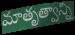
మాతృత్వాన్ని